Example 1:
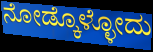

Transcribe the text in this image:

ನೋಡ್ಕೊಳ್ಳೋದು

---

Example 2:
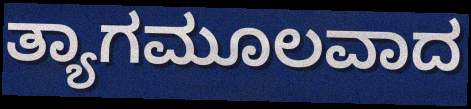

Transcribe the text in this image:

ತ್ಯಾಗಮೂಲವಾದ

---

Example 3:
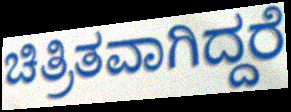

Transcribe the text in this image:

ಚಿತ್ರಿತವಾಗಿದ್ದರೆ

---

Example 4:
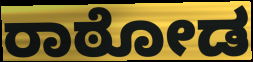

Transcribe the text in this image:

ರಾಠೋಡ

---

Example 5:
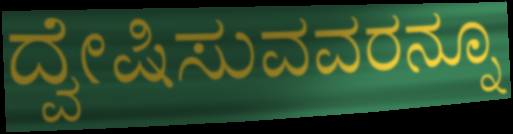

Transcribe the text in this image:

ದ್ವೇಷಿಸುವವರನ್ನೂ